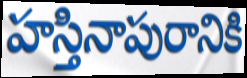
హస్తినాపురానికి